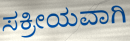
ಸಕ್ರೀಯವಾಗಿ